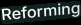
Reforming